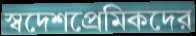
স্বদেশপ্রেমিকদের